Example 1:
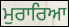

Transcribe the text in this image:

ਮੁਰਾਰਿਆ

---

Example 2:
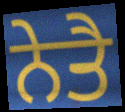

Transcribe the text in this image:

ਨੇਤੈ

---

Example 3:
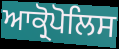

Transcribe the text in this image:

ਆਕ੍ਰੋਪੋਲਿਸ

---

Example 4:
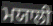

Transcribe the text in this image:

ਮਯਾਲੀ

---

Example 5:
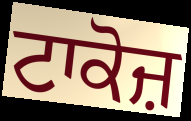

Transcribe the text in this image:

ਟਾਕੋਜ਼